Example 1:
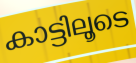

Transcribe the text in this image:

കാട്ടിലൂടെ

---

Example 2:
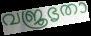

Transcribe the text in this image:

വജ്രഭൃതാ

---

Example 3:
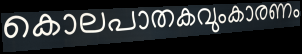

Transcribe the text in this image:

കൊലപാതകവുംകാരണം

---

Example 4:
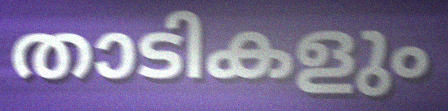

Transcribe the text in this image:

താടികളും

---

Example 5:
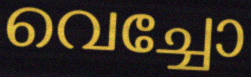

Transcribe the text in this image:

വെച്ചോ